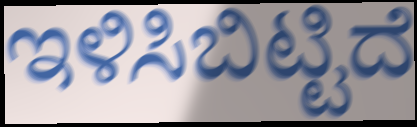
ಇಳಿಸಿಬಿಟ್ಟಿದೆ